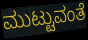
ಮುಟ್ಟುವಂತೆ